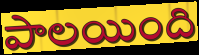
పాలయింది